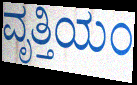
ವೃತ್ತಿಯಂ